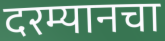
दरम्यानचा